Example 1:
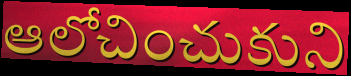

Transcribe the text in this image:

ఆలోచించుకుని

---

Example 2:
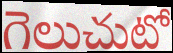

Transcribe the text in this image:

గెలుచుటో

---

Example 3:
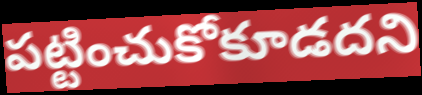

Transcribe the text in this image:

పట్టించుకోకూడదని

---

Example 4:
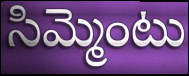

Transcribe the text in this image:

సిమ్మెంటు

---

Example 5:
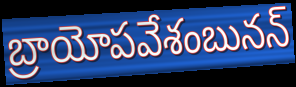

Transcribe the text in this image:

బ్రాయోపవేశంబునన్